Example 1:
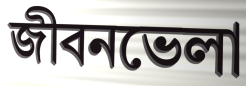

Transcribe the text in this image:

জীবনভেলা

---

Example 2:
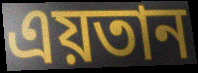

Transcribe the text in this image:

এয়তান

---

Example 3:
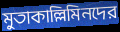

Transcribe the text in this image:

মুতাকাল্লিমিনদের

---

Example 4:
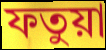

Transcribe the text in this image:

ফতুয়া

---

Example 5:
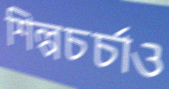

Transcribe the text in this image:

শিল্পচর্চাও